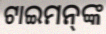
ଟାଇମନ୍‌ଙ୍କ